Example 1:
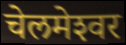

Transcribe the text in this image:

चेलमेश्‍वर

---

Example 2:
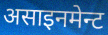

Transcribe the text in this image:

असाइनमेन्ट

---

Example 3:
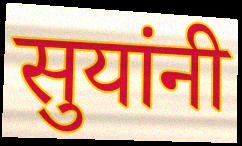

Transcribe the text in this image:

सुयांनी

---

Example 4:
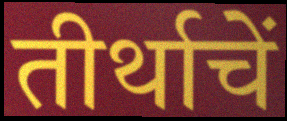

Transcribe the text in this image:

तीर्थाचें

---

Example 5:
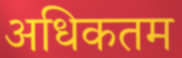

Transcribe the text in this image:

अधिकतम